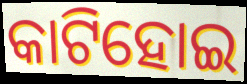
କାଟିହୋଇ